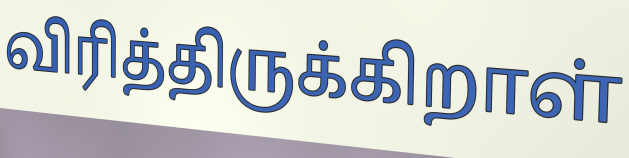
விரித்திருக்கிறாள்